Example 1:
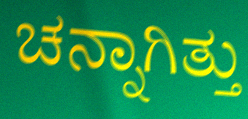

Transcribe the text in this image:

ಚನ್ನಾಗಿತ್ತು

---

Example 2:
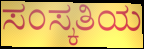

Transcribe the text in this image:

ಸಂಸ್ಕತಿಯ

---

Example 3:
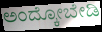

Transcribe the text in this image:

ಅಂದ್ಕೋಬೇಡಿ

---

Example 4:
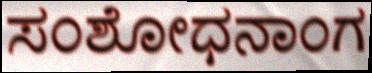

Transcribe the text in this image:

ಸಂಶೋಧನಾಂಗ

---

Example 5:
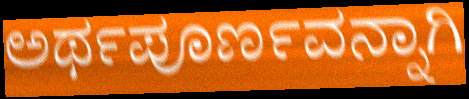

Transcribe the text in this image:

ಅರ್ಥಪೂರ್ಣವನ್ನಾಗಿ